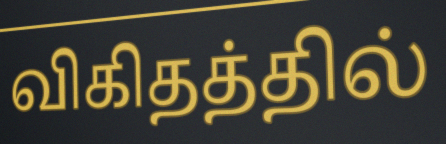
விகிதத்தில்